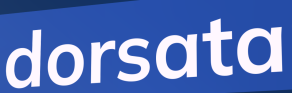
dorsata